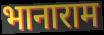
भानाराम